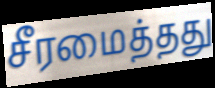
சீரமைத்தது